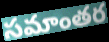
సమాంతర